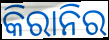
କିରାନିର